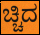
ಚ್ಚಿದ